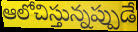
ఆలోచిస్తున్నప్పుడే